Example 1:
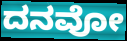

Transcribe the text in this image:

ದನವೋ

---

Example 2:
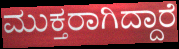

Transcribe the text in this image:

ಮುಕ್ತರಾಗಿದ್ದಾರೆ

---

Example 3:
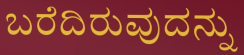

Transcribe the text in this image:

ಬರೆದಿರುವುದನ್ನು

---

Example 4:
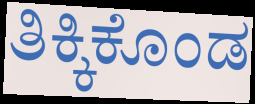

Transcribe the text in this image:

ತಿಕ್ಕಿಕೊಂಡ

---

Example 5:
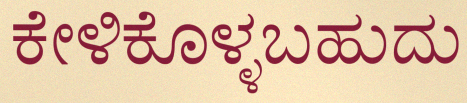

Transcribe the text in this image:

ಕೇಳಿಕೊಳ್ಳಬಹುದು